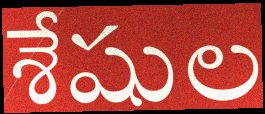
శేషుల